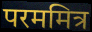
परममित्र